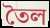
তৈল